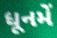
ધૂનમેં